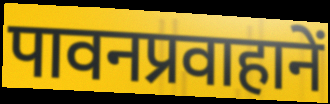
पावनप्रवाहानें